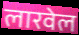
लारवेल